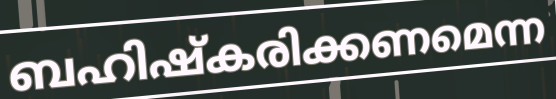
ബഹിഷ്കരിക്കണമെന്ന